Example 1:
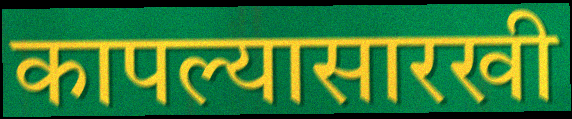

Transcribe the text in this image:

कापल्यासारखी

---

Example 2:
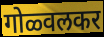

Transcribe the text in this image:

गोळ्वलकर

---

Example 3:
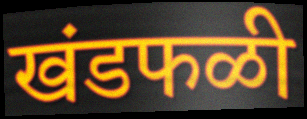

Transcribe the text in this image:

खंडफळी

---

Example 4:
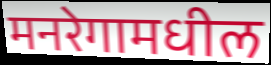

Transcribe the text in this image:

मनरेगामधील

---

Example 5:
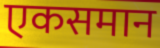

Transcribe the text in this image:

एकसमान